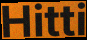
Hitti